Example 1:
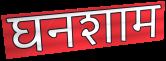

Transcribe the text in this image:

घनशाम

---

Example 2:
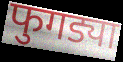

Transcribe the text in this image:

फुगड्या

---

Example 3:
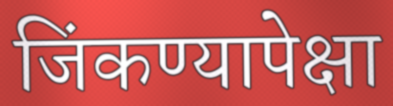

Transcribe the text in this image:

जिंकण्यापेक्षा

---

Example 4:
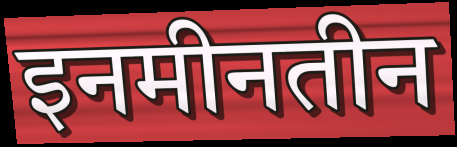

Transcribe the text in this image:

इनमीनतीन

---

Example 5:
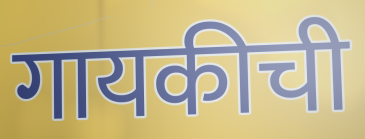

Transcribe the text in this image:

गायकीची